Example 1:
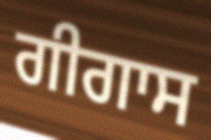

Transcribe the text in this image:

ਗੀਗਾਸ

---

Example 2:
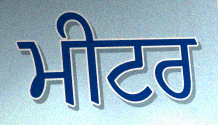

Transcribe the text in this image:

ਮੀਟਰ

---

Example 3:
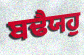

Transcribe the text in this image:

ਬਢੈਯਹੁ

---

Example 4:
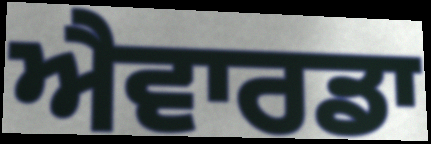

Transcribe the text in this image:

ਐਵਾਰਡਾ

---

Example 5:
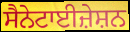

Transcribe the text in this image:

ਸੈਨੇਟਾਈਜ਼ੇਸ਼ਨ